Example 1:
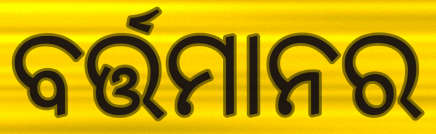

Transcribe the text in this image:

ବର୍ତ୍ତମାନର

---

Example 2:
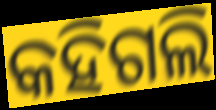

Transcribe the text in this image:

କହିଗଲି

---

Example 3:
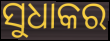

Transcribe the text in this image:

ସୁଧାକର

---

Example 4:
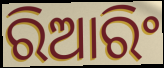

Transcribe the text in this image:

ରିଆରିଂ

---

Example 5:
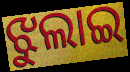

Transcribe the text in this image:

ଝୁଲାଇ